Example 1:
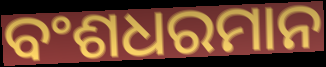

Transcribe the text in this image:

ବଂଶଧରମାନ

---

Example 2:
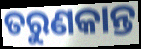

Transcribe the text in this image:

ତରୁଣକାନ୍ତ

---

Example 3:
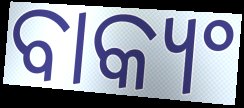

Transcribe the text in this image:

ବାକ୍ୟଂ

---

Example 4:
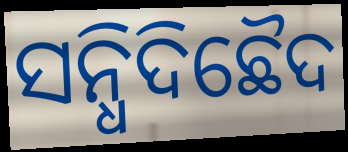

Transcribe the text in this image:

ସନ୍ଧିଦିଛୈଦ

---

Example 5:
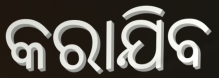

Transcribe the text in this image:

କରାଯିବ